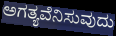
ಅಗತ್ಯವೆನಿಸುವುದು